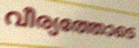
വീര്യത്തോടെ